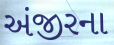
અંજીરના